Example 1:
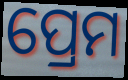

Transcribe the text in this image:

ପ୍ରେମ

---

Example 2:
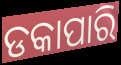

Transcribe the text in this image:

ଡକାପାରି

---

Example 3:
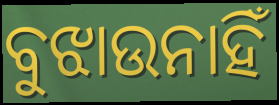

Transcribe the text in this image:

ବୁଝାଉନାହିଁ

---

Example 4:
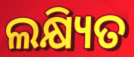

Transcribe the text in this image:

ଲକ୍ଷ୍ୟିତ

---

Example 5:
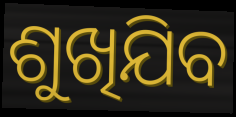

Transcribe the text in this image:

ଶୁଖିଯିବ